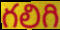
గలిగి